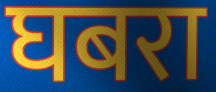
घबरा